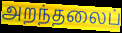
அறந்தலைப்